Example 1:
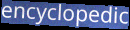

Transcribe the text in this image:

encyclopedic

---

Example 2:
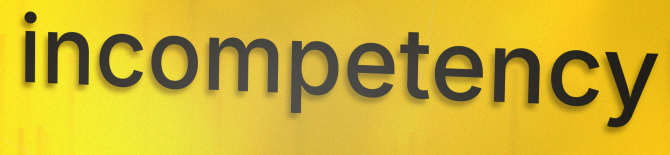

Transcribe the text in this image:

incompetency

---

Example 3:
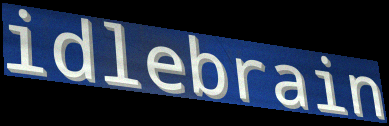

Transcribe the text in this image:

idlebrain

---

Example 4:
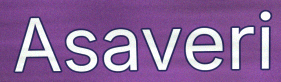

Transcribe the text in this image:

Asaveri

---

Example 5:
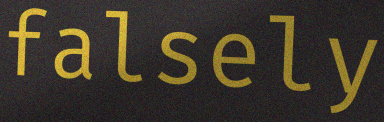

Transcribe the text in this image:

falsely